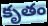
కృతం